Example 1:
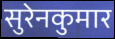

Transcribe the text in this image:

सुरेनकुमार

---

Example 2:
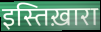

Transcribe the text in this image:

इस्तिख़ारा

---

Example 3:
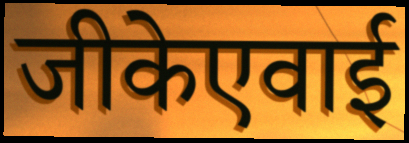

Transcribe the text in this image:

जीकेएवाई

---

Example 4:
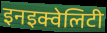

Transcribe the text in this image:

इनइक्वेलिटी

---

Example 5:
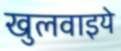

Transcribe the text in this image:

खुलवाइये